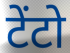
टेंटो